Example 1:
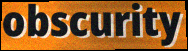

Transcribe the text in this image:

obscurity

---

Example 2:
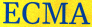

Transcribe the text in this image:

ECMA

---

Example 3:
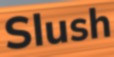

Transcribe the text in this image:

Slush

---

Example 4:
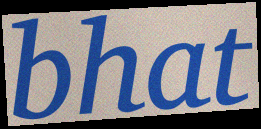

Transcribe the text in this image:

bhat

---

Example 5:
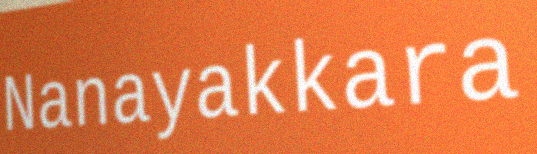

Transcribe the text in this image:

Nanayakkara